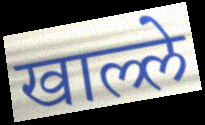
खाल्ले